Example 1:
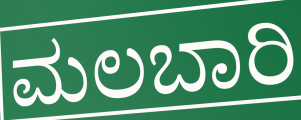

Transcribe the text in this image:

ಮಲಬಾರಿ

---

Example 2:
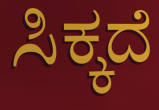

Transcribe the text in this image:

ಸಿಕ್ಕದೆ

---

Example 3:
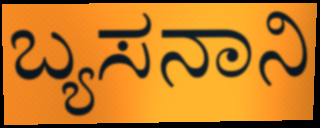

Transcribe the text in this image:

ಬ್ಯಸನಾನಿ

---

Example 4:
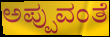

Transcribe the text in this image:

ಅಪ್ಪುವಂತೆ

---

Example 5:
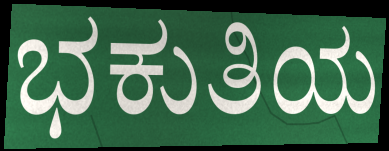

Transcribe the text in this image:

ಭಕುತಿಯ